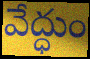
వేద్ధుం